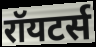
रॉयटर्स